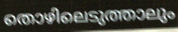
തൊഴിലെടുത്താലും